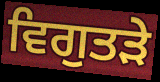
ਵਿਗੁਤੜੇ